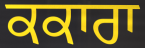
ਕਕਾਰਾ